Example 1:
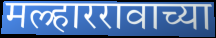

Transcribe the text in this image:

मल्हाररावाच्या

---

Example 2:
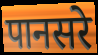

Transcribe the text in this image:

पानसरे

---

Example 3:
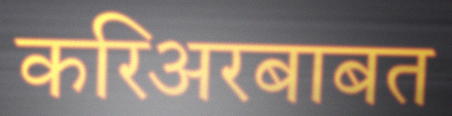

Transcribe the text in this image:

करिअरबाबत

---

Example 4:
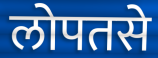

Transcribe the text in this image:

लोपतसे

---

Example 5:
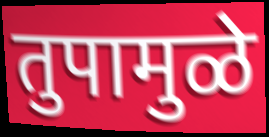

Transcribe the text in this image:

तुपामुळे